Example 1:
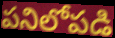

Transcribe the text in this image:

పనిలోపడి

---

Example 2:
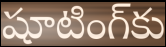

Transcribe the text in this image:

షూటింగ్‌కు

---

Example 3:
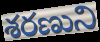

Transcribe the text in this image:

శరణుని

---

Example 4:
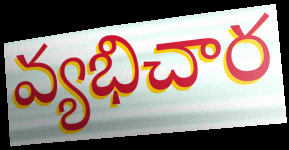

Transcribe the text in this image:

వ్యభిచార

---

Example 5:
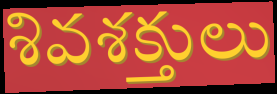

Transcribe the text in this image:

శివశక్తులు